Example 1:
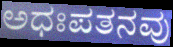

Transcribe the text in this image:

ಅಧಃಪತನವು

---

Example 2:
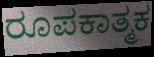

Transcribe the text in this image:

ರೂಪಕಾತ್ಮಕ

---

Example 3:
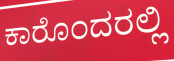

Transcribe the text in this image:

ಕಾರೊಂದರಲ್ಲಿ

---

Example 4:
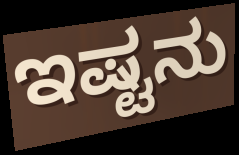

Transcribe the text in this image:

ಇಷ್ಟನು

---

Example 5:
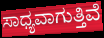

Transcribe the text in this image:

ಸಾಧ್ಯವಾಗುತ್ತಿವೆ